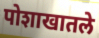
पोशाखातले